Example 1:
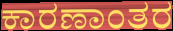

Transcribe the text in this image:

ಕಾರಣಾಂತರ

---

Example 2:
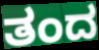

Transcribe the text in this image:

ತಂದ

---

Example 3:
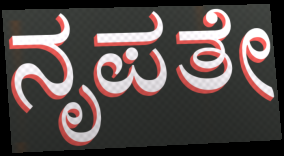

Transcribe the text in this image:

ನೃಪತೇ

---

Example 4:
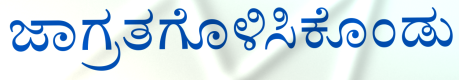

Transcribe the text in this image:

ಜಾಗ್ರತಗೊಳಿಸಿಕೊಂಡು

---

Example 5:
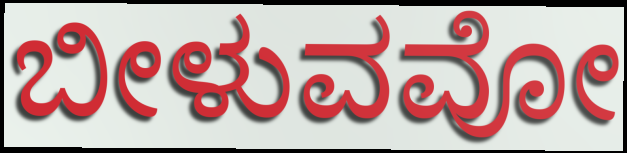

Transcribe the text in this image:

ಬೀಳುವವೋ